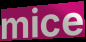
mice